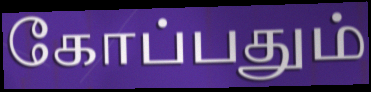
கோப்பதும்